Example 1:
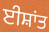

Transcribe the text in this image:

ਈਸ਼ਾਂਤ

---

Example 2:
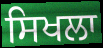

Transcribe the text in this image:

ਸਿਖਲਾ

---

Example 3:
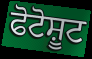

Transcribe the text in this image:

ਫੋਟੋਸ਼ੂਟ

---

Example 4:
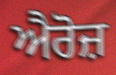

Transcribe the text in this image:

ਐਰੋਜ਼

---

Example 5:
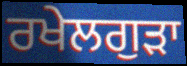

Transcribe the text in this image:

ਰਖੇਲਗੁੜਾ